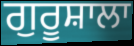
ਗੁਰੂਸ਼ਾਲਾ